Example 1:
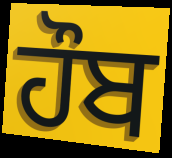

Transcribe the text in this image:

ਹੌਬ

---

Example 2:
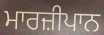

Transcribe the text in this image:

ਮਾਰਜ਼ੀਪਾਨ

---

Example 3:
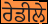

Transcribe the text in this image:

ਰੇਡੀਲੇ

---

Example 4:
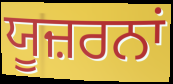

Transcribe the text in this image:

ਯੂਜ਼ਰਨਾਂ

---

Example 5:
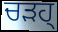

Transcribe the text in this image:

ਚੜਹ੍